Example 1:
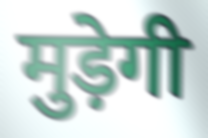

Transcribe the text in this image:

मुड़ेगी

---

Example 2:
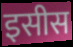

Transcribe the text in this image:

इसीस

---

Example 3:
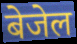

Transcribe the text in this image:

बेजेल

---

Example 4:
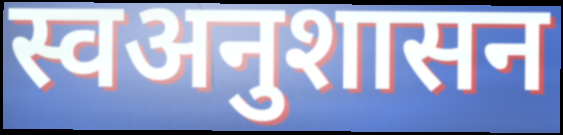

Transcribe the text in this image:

स्वअनुशासन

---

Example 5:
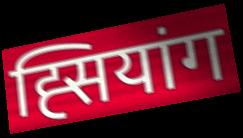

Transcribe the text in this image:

ह्सियांग